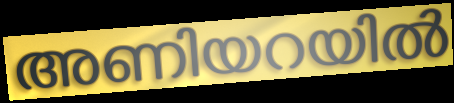
അണിയറയിൽ